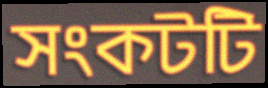
সংকটটি